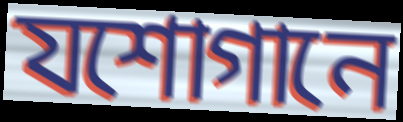
যশোগানে